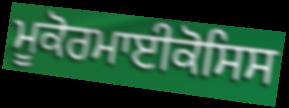
ਮੂਕੋਰਮਾਈਕੋਸਿਸ